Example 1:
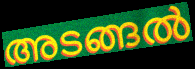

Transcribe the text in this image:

അടങ്ങൽ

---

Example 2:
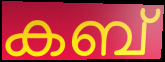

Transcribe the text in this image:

കബ്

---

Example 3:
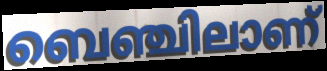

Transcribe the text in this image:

ബെഞ്ചിലാണ്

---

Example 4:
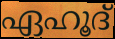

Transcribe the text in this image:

ഏഹൂദ്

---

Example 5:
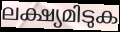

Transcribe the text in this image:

ലക്ഷ്യമിടുക